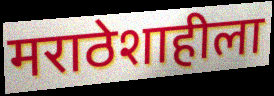
मराठेशाहीला